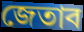
জেতাব